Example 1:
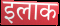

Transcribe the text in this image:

इलाक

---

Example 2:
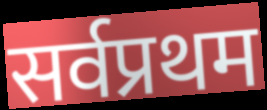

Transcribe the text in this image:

सर्वप्रथम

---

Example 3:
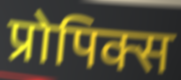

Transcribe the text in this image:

प्रोपिक्स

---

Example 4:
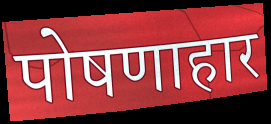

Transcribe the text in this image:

पोषणाहार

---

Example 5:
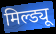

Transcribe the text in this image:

मिल्ड्यू